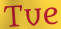
Tue